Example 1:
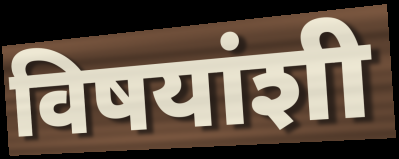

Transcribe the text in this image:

विषयांशी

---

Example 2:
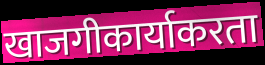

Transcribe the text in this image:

खाजगीकार्याकरता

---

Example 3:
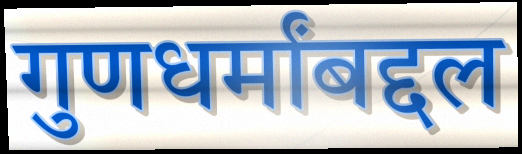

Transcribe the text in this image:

गुणधर्मांबद्दल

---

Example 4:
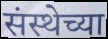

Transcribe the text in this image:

संस्थेच्या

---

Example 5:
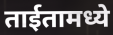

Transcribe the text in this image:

ताईतामध्ये